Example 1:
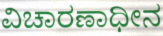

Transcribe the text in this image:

ವಿಚಾರಣಾಧೀನ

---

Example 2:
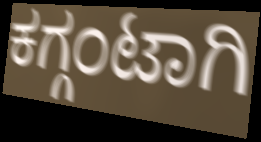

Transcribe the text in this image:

ಕಗ್ಗಂಟಾಗಿ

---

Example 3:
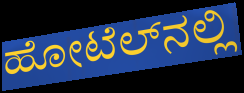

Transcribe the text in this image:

ಹೋಟೆಲ್‌ನಲ್ಲಿ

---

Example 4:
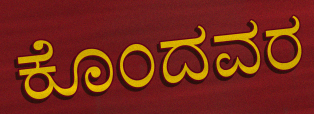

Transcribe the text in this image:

ಕೊಂದವರ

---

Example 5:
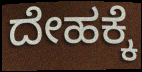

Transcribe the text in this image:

ದೇಹಕ್ಕೆ